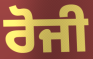
ਰੋਜੀ